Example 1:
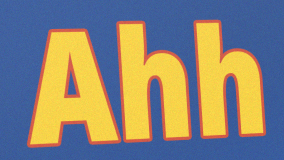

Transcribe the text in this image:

Ahh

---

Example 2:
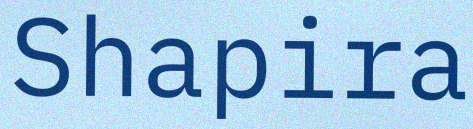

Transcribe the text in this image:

Shapira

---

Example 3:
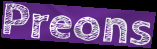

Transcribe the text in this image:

Preons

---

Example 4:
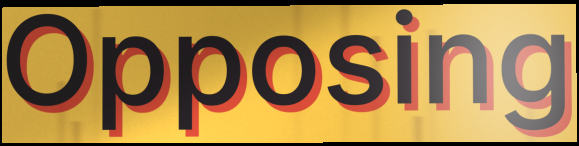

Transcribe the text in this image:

Opposing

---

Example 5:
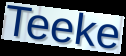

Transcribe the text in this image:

Teeke